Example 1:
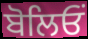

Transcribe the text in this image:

ਬੋਲਿਓਂ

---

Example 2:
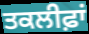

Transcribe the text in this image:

ਤਕਲੀਫ਼ਾਂ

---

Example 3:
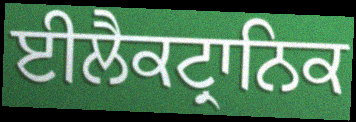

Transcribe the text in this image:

ਈਲੈਕਟ੍ਰਾਨਿਕ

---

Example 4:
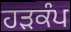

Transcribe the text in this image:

ਹਡ਼ਕੰਪ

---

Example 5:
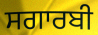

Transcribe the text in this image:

ਸਗਾਰਬੀ